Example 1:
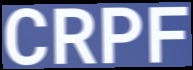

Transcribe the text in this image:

CRPF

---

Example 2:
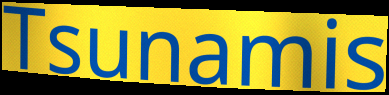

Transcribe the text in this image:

Tsunamis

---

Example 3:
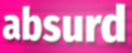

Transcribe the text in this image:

absurd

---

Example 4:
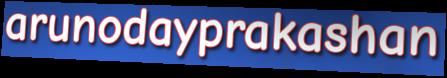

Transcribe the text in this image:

arunodayprakashan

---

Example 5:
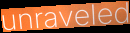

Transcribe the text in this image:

unraveled